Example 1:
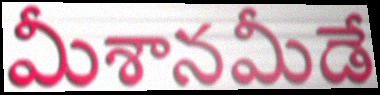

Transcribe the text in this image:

మీశానమీడే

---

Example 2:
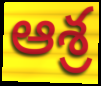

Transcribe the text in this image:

ఆశ్ర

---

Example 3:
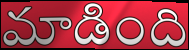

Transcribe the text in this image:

మాడింది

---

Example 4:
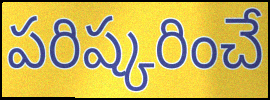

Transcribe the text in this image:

పరిష్కరించే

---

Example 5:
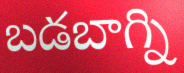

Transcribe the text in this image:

బడబాగ్ని